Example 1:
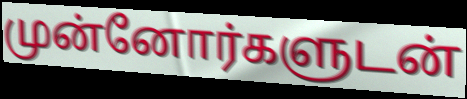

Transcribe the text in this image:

முன்னோர்களுடன்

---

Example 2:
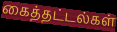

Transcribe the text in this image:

கைத்தட்டல்கள்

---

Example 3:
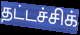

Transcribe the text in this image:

தட்டச்சிக்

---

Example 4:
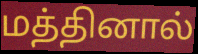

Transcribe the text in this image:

மத்தினால்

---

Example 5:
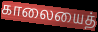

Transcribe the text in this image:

காலையைத்